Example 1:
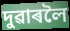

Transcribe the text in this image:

দুৱাৰলৈ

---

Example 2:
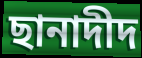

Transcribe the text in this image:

ছানাদীদ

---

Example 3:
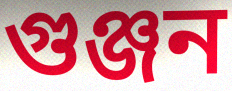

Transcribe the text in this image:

গুঞ্জন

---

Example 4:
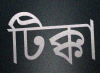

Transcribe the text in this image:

টিক্কা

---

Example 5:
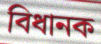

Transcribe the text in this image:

বিধানক